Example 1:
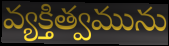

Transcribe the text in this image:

వ్యక్తిత్వమును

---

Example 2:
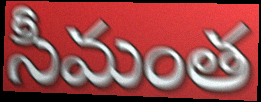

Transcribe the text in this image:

సీమంత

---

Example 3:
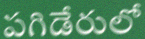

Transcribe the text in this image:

పగిడేరులో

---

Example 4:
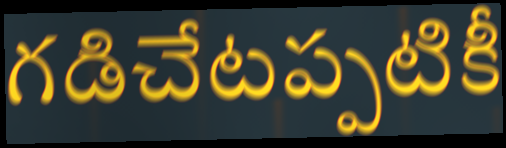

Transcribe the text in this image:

గడిచేటప్పటికీ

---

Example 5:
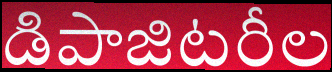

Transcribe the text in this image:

డిపాజిటరీల